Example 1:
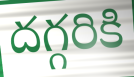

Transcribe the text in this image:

దగ్గరికి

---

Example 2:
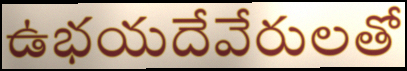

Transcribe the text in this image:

ఉభయదేవేరులతో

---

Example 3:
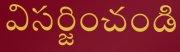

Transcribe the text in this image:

విసర్జించండి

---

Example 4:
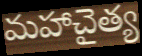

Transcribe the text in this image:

మహాచైత్య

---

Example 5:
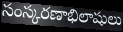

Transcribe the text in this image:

సంస్కరణాభిలాషులు